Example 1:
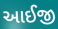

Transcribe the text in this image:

આઈજી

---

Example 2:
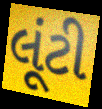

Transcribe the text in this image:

લૂંટી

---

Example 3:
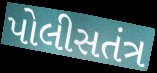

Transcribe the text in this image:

પોલીસતંત્ર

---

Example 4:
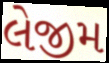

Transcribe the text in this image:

લેજીમ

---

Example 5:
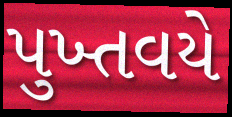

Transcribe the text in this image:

પુખ્તવયે